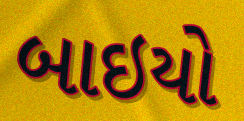
બાઇયો